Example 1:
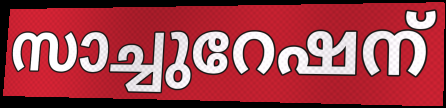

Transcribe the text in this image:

സാച്ചുറേഷന്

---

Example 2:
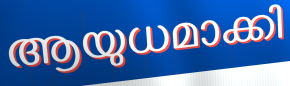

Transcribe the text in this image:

ആയുധമാക്കി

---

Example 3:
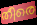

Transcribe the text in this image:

തീരെ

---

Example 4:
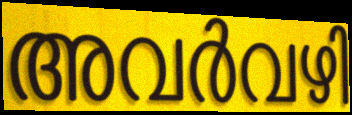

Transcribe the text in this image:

അവർവഴി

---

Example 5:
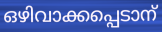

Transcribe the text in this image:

ഒഴിവാക്കപ്പെടാന്